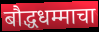
बौद्धधम्माचा